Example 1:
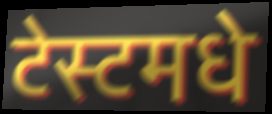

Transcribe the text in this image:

टेस्टमधे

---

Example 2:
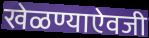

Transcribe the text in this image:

खेळण्याऐवजी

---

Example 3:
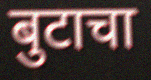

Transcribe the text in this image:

बुटाचा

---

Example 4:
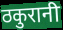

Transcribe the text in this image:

ठकुरानी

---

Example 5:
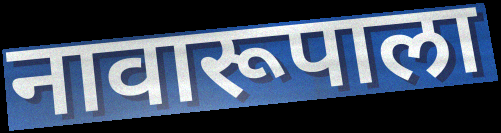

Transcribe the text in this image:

नावारूपाला